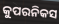
କୁପରନିକସ